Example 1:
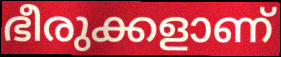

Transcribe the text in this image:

ഭീരുക്കളാണ്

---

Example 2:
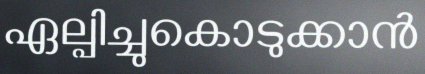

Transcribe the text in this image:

ഏല്പിച്ചുകൊടുക്കാൻ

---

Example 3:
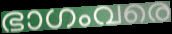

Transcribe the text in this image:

ഭാഗംവരെ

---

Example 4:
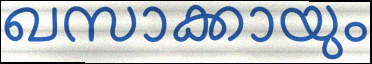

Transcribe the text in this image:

ഖസാക്കായും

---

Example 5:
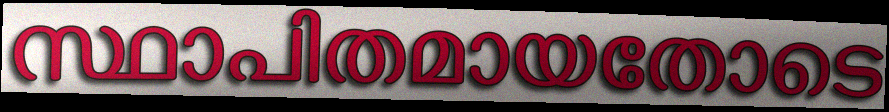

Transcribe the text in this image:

സ്ഥാപിതമായതോടെ